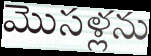
మొసళ్లను